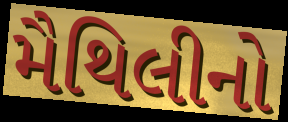
મૈથિલીનો